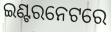
ଇଣ୍ଟରନେଟରେ